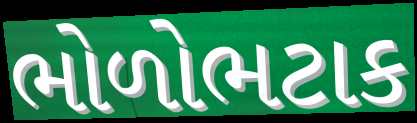
ભોળોભટાક